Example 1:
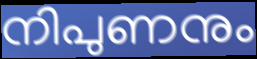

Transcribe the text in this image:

നിപുണനും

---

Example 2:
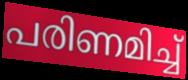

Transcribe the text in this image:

പരിണമിച്ച്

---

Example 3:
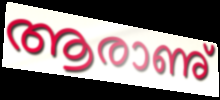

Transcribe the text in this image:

ആരാണു്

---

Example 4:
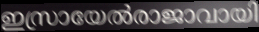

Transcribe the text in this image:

ഇസ്രായേൽരാജാവായി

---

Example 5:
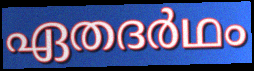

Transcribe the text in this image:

ഏതദർഥം